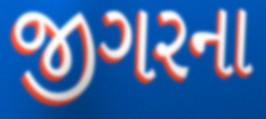
જીગરના